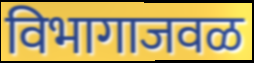
विभागाजवळ